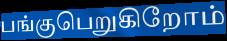
பங்குபெறுகிறோம்